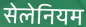
सेलेनियम